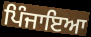
ਪਿੰਜਾਇਆ